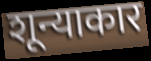
शून्याकार